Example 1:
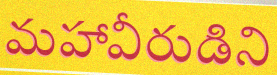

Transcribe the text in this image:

మహావీరుడిని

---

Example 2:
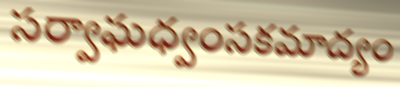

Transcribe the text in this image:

సర్వాఘధ్వంసకమాద్యం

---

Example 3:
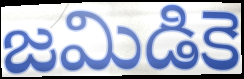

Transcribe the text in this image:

జమిడికె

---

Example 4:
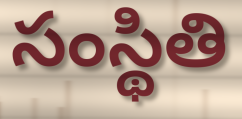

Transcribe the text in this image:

సంస్థితి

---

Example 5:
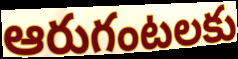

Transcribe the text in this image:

ఆరుగంటలకు